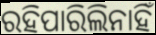
ରହିପାରିଲିନାହିଁ